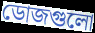
ডোজগুলো